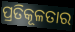
ପ୍ରତିକୂଳତାର